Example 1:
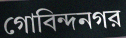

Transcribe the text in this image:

গোবিন্দনগর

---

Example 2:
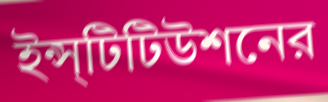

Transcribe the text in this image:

ইন্স্টিটিউশনের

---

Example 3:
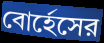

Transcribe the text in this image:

বোর্হেসের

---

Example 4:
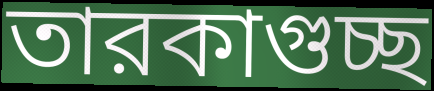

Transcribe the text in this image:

তারকাগুচ্ছ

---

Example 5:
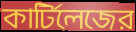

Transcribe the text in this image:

কার্টিলেজের